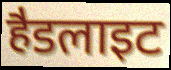
हैडलाइट